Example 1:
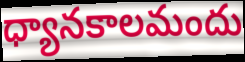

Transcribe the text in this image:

ధ్యానకాలమందు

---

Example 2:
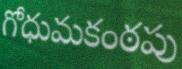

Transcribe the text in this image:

గోధుమకంఠపు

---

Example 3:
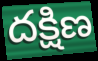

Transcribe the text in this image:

దక్షిణ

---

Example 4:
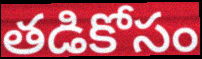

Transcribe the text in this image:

తడికోసం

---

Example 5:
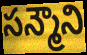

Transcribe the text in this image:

సన్మౌని